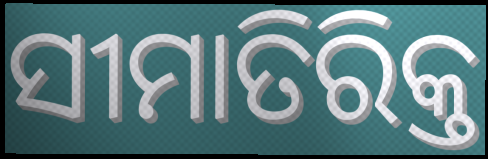
ସୀମାତିରିକ୍ତ